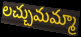
లచ్చుమమ్మా